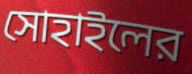
সোহাইলের